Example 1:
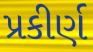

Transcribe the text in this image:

પ્રકીર્ણ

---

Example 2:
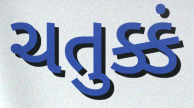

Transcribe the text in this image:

ચતુક્કં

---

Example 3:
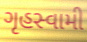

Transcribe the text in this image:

ગૃહસ્વામી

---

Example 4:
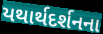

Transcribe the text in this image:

યથાર્થદર્શનના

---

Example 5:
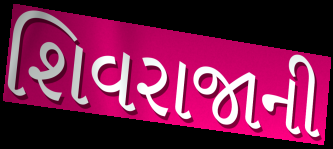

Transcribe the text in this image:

શિવરાજાની